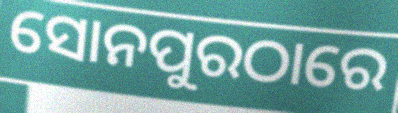
ସୋନପୁରଠାରେ